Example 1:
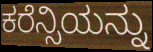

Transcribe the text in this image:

ಕರೆನ್ಸಿಯನ್ನು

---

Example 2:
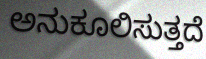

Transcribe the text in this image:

ಅನುಕೂಲಿಸುತ್ತದೆ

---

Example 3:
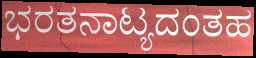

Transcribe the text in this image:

ಭರತನಾಟ್ಯದಂತಹ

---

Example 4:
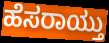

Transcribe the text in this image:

ಹೆಸರಾಯ್ತು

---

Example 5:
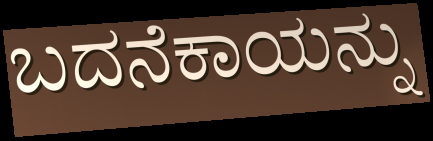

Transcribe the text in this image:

ಬದನೆಕಾಯನ್ನು